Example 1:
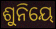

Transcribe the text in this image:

ଶୁନିୟେ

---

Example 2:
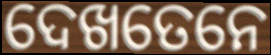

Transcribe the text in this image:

ଦେଖତେନେ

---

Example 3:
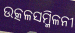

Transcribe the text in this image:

ଉତ୍କଳସମ୍ମିଳନୀ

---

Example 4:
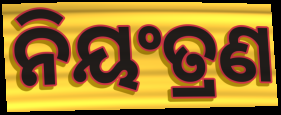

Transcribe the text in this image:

ନିୟଂତ୍ରଣ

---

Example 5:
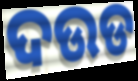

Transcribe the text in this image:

ଦଉଡ